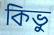
কিভু